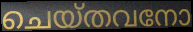
ചെയ്തവനോ